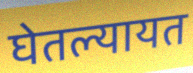
घेतल्यायत